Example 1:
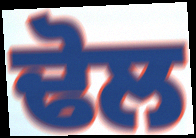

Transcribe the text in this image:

ਢੋਲ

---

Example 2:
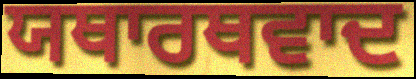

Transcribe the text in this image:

ਯਥਾਰਥਵਾਦ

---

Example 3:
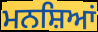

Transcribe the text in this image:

ਮਨਸ਼ਿਆਂ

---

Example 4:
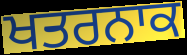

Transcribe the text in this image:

ਖਤਰਨਾਕ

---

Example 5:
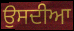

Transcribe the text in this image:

ਉਸਦੀਆ